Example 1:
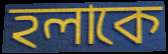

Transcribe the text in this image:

হলাকে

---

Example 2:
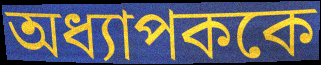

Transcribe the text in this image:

অধ্যাপককে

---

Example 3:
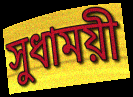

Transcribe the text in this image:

সুধাময়ী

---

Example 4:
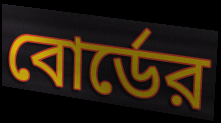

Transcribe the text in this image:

বোর্ডের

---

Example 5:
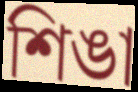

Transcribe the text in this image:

শিঙা